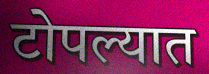
टोपल्यात